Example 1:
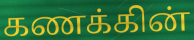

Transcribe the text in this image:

கணக்கின்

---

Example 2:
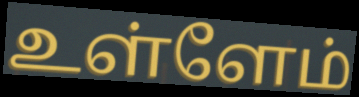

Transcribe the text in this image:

உள்ளேம்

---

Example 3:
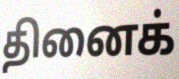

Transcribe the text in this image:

தினைக்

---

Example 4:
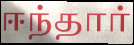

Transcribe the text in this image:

ஈந்தார்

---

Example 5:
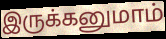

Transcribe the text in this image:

இருக்கனுமாம்